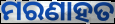
ମରଣାହତ